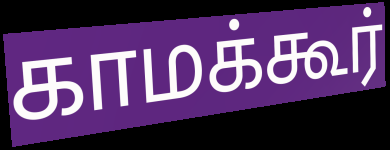
காமக்கூர்